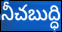
నీచబుద్ధి